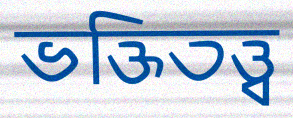
ভক্তিতত্ত্ব